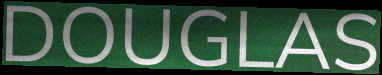
DOUGLAS